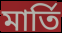
মার্তি